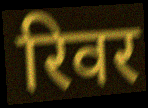
रिवर